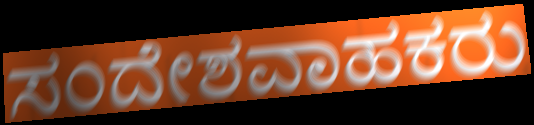
ಸಂದೇಶವಾಹಕರು